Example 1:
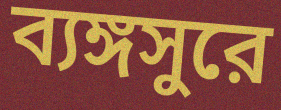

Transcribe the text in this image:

ব্যঙ্গসুরে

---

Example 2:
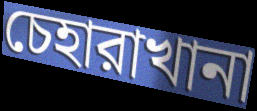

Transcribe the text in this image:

চেহারাখানা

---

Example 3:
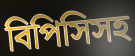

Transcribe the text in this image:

বিপিসিসহ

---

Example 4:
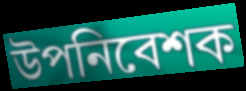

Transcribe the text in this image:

উপনিবেশক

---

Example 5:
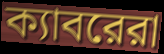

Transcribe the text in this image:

ক্যাবরেরা